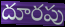
దూరపు